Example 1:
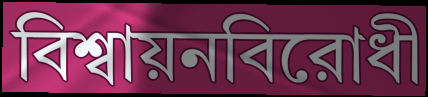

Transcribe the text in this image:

বিশ্বায়নবিরোধী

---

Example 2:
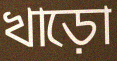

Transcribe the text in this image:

খাড়ো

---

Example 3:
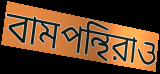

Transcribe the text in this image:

বামপন্থিরাও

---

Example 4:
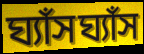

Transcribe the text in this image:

ঘ্যাঁসঘ্যাঁস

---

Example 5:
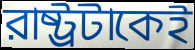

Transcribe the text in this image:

রাষ্ট্রটাকেই